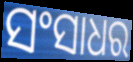
ସଂସାଧର